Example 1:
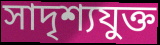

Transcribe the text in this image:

সাদৃশ্যযুক্ত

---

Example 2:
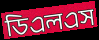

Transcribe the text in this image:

ডিএলএস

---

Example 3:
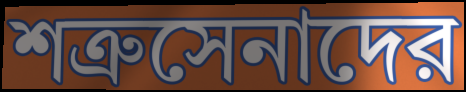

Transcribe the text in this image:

শত্রুসেনাদের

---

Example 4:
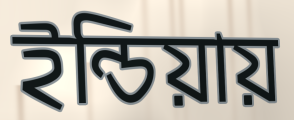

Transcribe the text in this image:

ইন্ডিয়ায়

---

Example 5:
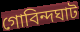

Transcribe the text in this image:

গোবিন্দঘাট